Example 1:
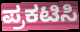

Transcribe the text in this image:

ಪ್ರಕಟಿಸಿ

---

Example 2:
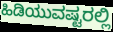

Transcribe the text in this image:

ಹಿಡಿಯುವಷ್ಟರಲ್ಲಿ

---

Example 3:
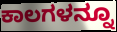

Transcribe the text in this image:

ಕಾಲಗಳನ್ನೂ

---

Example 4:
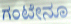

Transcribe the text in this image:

ಗಂಟೇನೂ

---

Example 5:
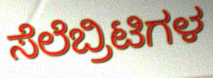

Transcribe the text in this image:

ಸೆಲೆಬ್ರಿಟಿಗಳ